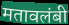
मतावलंबी